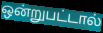
ஒன்றுபட்டால்